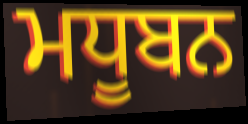
ਮਧੂਬਨ